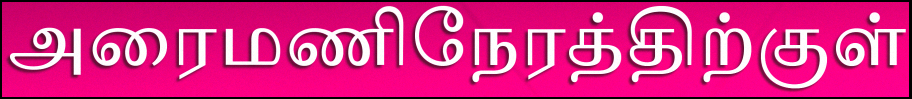
அரைமணிநேரத்திற்குள்